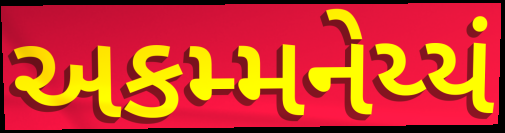
અકમ્મનેય્યં